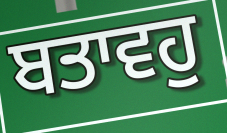
ਬਤਾਵਹੁ